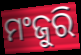
ମଂଜୁରି